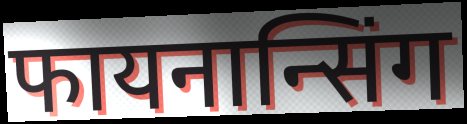
फायनान्सिंग